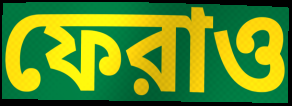
ফেরাও